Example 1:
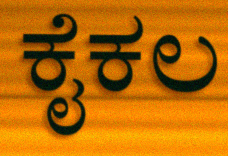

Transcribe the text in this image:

ಕೈಕಲ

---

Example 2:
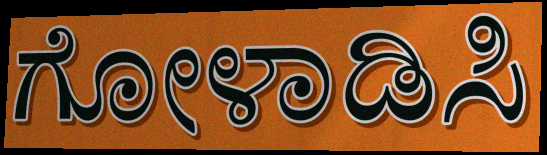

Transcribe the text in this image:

ಗೋಳಾಡಿಸಿ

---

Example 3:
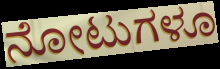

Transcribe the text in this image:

ನೋಟುಗಳೂ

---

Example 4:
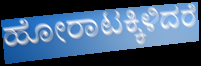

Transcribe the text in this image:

ಹೋರಾಟಕ್ಕಿಳಿದರೆ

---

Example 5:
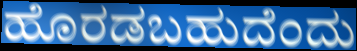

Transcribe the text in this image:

ಹೊರಡಬಹುದೆಂದು